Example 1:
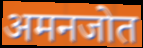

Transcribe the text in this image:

अमनजोत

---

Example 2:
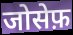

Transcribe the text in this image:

जोसेफ़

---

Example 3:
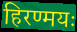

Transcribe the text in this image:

हिरण्मयः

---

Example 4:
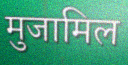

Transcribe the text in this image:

मुजामिल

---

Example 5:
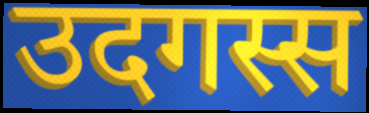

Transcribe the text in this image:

उदगस्स